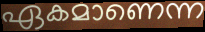
ഏകമാണെന്ന